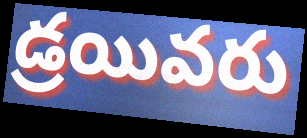
డ్రయివరు